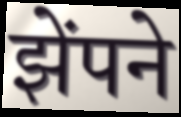
झेंपने